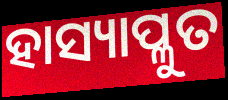
ହାସ୍ୟାପ୍ଳୁତ